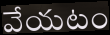
వేయటం